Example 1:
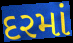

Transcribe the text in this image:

દરમાં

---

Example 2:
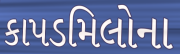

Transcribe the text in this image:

કાપડમિલોના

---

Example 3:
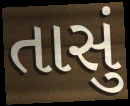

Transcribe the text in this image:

તાસું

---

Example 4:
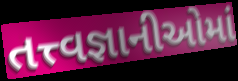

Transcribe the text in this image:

તત્ત્વજ્ઞાનીઓમાં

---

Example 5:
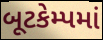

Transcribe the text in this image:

બૂટકેમ્પમાં